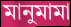
মানুমামা